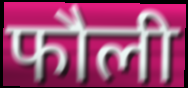
फौली